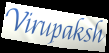
Virupaksh